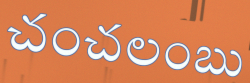
చంచలంబు